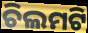
ଚିଲମଟି